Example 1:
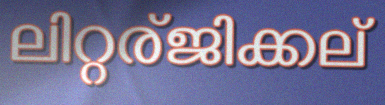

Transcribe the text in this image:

ലിറ്റര്ജിക്കല്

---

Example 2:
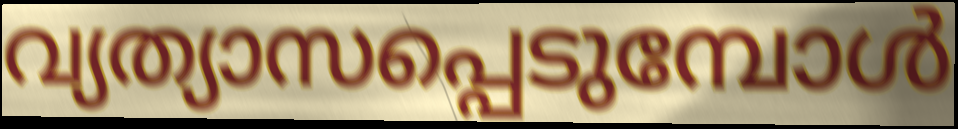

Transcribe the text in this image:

വ്യത്യാസപ്പെടുമ്പോൾ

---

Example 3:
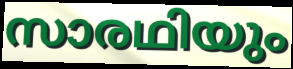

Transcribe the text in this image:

സാരഥിയും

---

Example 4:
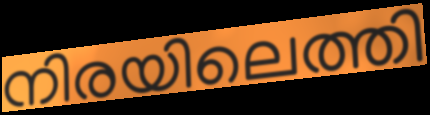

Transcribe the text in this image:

നിരയിലെത്തി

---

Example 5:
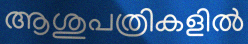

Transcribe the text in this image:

ആശുപത്രികളിൽ